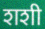
शशी